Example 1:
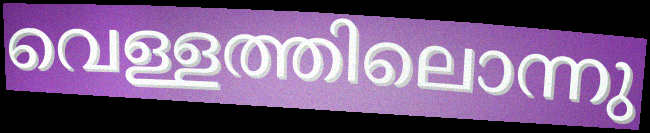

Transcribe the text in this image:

വെള്ളത്തിലൊന്നു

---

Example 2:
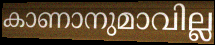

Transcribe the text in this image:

കാണാനുമാവില്ല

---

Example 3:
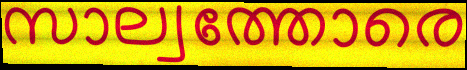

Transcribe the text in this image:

സാല്വത്തോരെ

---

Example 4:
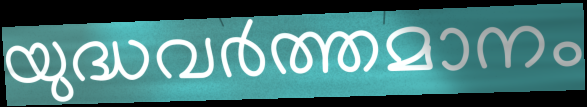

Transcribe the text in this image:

യുദ്ധവർത്തമാനം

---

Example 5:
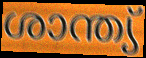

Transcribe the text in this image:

ശാന്ത്യ്